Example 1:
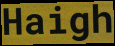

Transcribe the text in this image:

Haigh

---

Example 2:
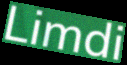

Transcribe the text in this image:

Limdi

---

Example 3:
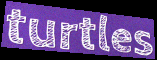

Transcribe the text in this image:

turtles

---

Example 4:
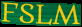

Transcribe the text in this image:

FSLM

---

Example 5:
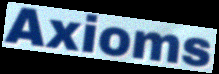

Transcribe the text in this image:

Axioms